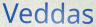
Veddas